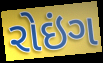
રોઇંગ